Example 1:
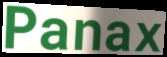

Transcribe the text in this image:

Panax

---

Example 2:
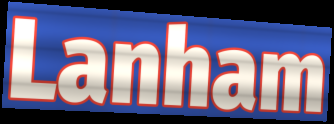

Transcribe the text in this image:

Lanham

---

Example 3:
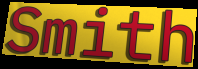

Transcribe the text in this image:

Smith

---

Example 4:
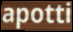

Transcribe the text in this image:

apotti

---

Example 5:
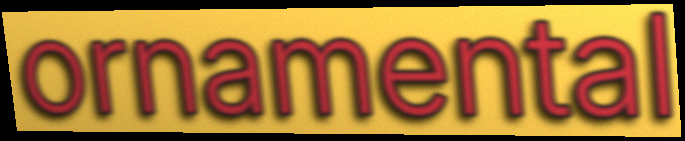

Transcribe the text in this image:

ornamental